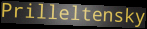
Prilleltensky